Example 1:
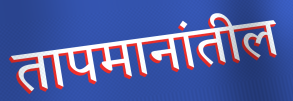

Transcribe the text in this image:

तापमानांतील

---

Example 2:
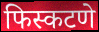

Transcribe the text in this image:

फिस्कटणे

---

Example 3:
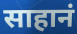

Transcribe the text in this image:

साहानं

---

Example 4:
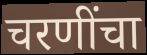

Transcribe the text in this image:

चरणींचा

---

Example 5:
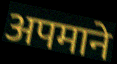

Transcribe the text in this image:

अपमाने